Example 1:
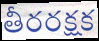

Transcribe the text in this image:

తీరరక్షక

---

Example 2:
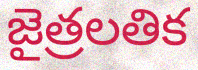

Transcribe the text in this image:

జైత్రలతిక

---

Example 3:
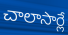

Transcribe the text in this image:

చాలాసార్లే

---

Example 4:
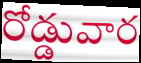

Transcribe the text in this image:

రోడ్డువార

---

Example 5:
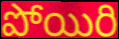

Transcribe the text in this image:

పోయిరి